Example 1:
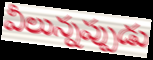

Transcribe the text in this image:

వీలున్నప్పుడు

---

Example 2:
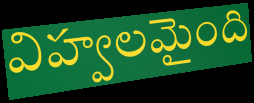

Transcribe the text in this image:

విహ్వలమైంది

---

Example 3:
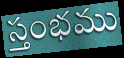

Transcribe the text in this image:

స్తంభము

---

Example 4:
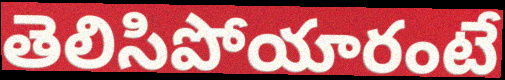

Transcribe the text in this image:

తెలిసిపోయారంటే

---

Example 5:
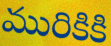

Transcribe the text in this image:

మురికికి